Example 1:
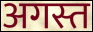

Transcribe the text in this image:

अगस्‍त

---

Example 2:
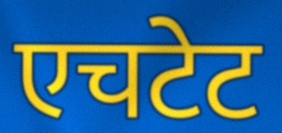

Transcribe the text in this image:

एचटेट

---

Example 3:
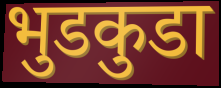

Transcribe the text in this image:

भुडकुडा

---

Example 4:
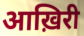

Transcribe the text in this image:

आख़िरी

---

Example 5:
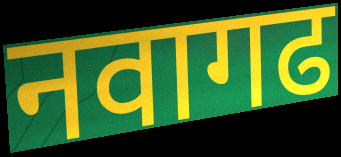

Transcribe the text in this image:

नवागढ